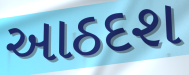
આઠદશ